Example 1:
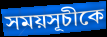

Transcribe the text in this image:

সময়সূচীকে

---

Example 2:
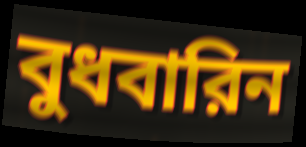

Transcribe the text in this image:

বুধবারিন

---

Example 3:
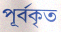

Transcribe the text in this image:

পূর্বকৃত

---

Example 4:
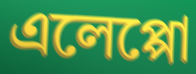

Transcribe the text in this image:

এলেপ্পো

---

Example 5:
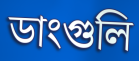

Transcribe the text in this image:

ডাংগুলি